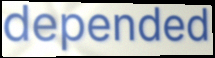
depended